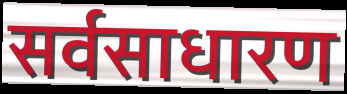
सर्वसाधारण